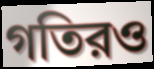
গতিরও